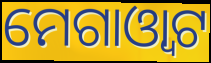
ମେଗାଓ୍ୱାଟ